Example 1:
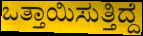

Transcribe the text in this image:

ಒತ್ತಾಯಿಸುತ್ತಿದ್ದೆ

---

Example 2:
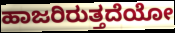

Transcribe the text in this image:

ಹಾಜರಿರುತ್ತದೆಯೋ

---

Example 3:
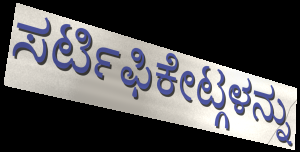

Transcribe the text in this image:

ಸರ್ಟಿಫಿಕೇಟ್ಗಳನ್ನು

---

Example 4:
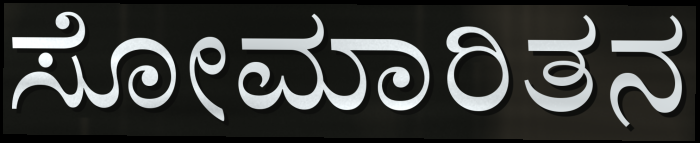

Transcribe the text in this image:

ಸೋಮಾರಿತನ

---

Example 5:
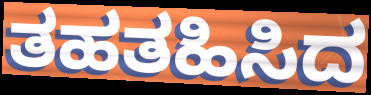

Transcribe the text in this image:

ತಹತಹಿಸಿದ